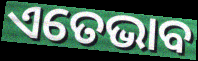
ଏତେଭାବ